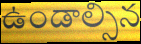
ఉండాల్సిన